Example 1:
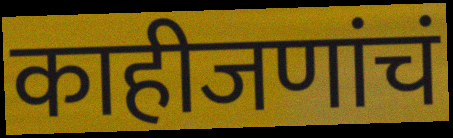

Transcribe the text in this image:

काहीजणांचं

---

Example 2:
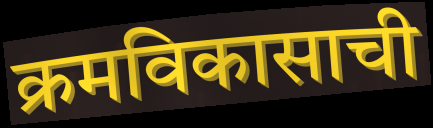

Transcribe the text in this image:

क्रमविकासाची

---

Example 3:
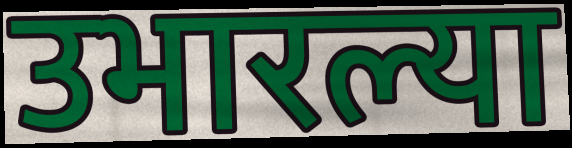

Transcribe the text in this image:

उभारल्या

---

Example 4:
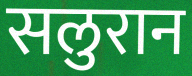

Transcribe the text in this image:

सलुरान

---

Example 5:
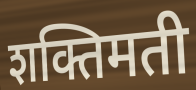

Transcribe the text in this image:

शक्तिमती